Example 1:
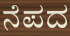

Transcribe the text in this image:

ನೆಪದ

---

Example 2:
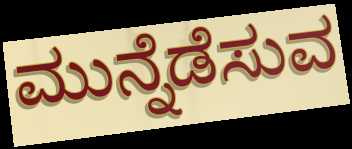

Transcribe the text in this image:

ಮುನ್ನೆಡೆಸುವ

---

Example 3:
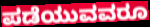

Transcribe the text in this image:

ಪಡೆಯುವವರೂ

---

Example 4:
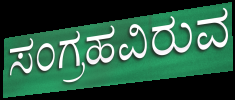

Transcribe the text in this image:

ಸಂಗ್ರಹವಿರುವ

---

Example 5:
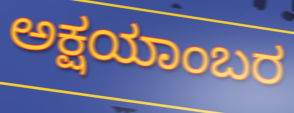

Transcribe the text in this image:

ಅಕ್ಷಯಾಂಬರ